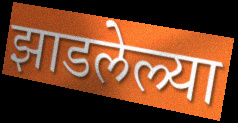
झाडलेल्या